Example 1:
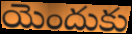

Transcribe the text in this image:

యెందుకు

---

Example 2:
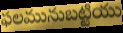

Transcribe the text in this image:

ఫలమునుబట్టియు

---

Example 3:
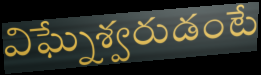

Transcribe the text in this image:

విఘ్నేశ్వరుడంటే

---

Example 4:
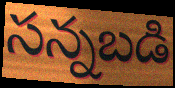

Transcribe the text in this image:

సన్నబడి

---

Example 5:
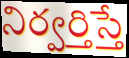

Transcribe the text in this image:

నిర్వర్తిస్తే